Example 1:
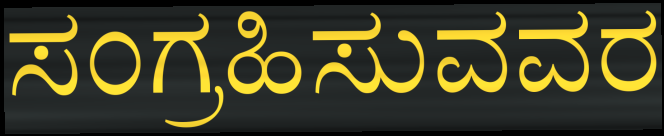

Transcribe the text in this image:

ಸಂಗ್ರಹಿಸುವವರ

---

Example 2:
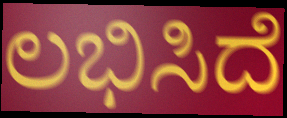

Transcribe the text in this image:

ಲಭಿಸಿದೆ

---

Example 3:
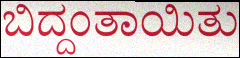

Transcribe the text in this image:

ಬಿದ್ದಂತಾಯಿತು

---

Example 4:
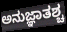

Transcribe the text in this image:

ಅನುಜ್ಞಾತಶ್ಚ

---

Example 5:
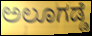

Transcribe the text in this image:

ಅಲೂಗಡ್ಡೆ